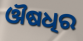
ଔଷଧିର